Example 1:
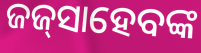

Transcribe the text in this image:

ଜଜ୍‍ସାହେବଙ୍କ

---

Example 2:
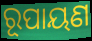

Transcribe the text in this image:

ରୂପାୟଣ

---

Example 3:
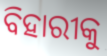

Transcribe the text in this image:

ବିହାରୀକୁ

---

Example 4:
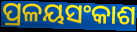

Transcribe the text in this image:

ପ୍ରଳୟସଂକାଶ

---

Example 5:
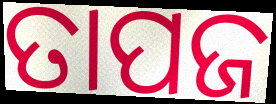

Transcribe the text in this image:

ତାପଜ